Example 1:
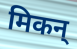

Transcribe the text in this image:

मिकन्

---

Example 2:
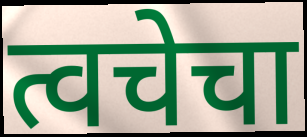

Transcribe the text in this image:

त्वचेचा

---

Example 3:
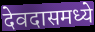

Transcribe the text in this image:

देवदासमध्ये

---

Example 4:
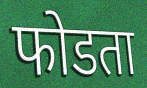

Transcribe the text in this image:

फोडता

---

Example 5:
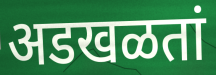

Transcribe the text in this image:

अडखळतां